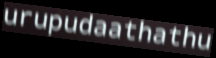
urupudaathathu